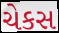
ચેકસ